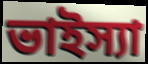
ভাইস্যা